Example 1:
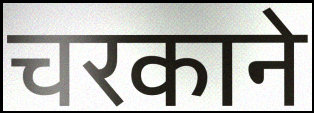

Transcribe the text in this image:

चरकाने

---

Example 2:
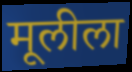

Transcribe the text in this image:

मूलीला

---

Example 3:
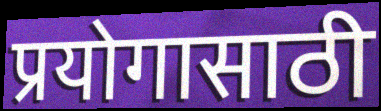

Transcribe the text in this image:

प्रयोगासाठी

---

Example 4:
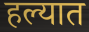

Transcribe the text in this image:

हल्यात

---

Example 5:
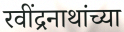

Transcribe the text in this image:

रवींद्रनाथांच्या